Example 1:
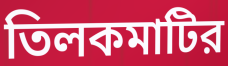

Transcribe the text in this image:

তিলকমাটির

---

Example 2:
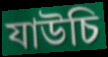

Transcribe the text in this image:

যাউচি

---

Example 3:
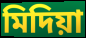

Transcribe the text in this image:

মিদিয়া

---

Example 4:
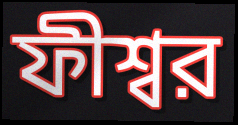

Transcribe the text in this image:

ফীশ্বর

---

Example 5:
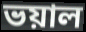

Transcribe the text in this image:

ভয়াল